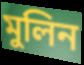
মুলিন